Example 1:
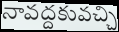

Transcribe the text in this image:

నావద్దకువచ్చి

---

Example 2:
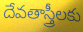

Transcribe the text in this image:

దేవతాస్త్రీలకు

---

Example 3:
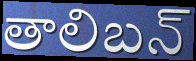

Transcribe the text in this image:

తాలిబన్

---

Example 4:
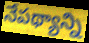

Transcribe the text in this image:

నేపథ్యాన్ని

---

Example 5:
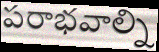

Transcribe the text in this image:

పరాభవాల్ని